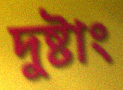
দুষ্টাং